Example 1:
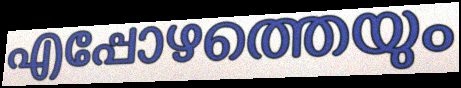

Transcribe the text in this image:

എപ്പോഴത്തെയും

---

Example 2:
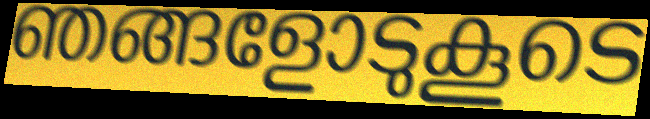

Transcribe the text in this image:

ഞങ്ങളോടുകൂടെ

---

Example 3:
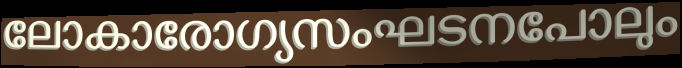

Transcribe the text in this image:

ലോകാരോഗ്യസംഘടനപോലും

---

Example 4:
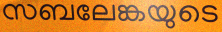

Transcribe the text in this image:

സബലേങ്കയുടെ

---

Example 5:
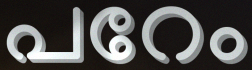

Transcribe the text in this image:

പറേം